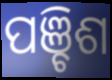
ପଞ୍ଚିଶ